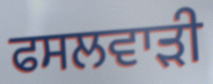
ਫਸਲਵਾੜੀ